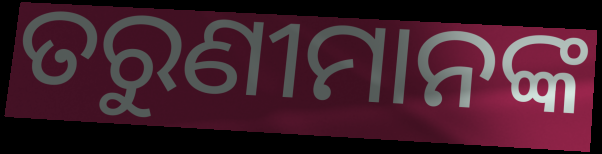
ତରୁଣୀମାନଙ୍କ